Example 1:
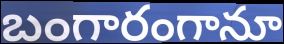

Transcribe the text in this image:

బంగారంగానూ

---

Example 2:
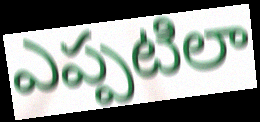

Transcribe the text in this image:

ఎప్పటిలా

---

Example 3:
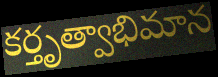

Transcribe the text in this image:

కర్తృత్వాభిమాన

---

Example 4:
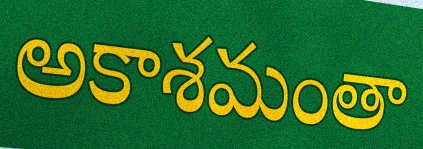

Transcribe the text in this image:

అకాశమంతా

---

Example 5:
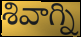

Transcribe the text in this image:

శివాగ్ని